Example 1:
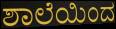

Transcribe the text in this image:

ಶಾಲೆಯಿಂದ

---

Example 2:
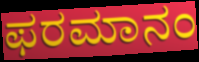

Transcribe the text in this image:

ಫರಮಾನಂ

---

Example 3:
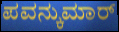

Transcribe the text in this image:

ಪವನ್ಕುಮಾರ್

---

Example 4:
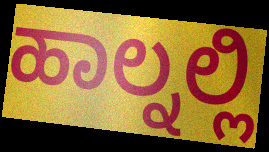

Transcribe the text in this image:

ಹಾಲ್ನಲ್ಲಿ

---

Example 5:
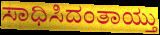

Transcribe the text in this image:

ಸಾಧಿಸಿದಂತಾಯ್ತು